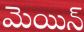
మెయిన్